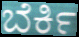
ಬೆರ್ಕಿ